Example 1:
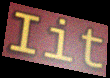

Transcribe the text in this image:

Iit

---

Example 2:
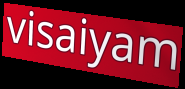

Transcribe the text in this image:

visaiyam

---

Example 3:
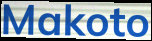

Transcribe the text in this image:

Makoto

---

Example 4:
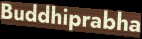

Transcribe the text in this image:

Buddhiprabha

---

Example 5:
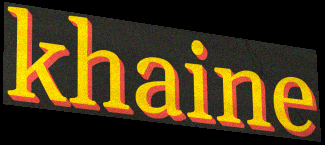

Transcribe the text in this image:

khaine